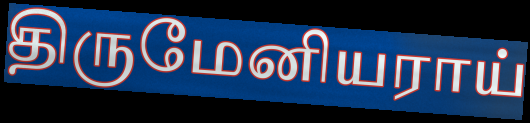
திருமேனியராய்